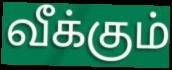
வீக்கும்